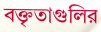
বক্তৃতাগুলির